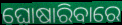
ଘୋଷାରିବାରେ